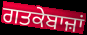
ਗਤਕੇਬਾਜ਼ਾਂ